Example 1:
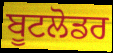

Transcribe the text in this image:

ਬੂਟਲੋਡਰ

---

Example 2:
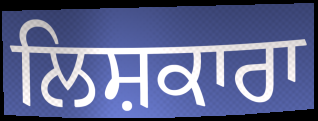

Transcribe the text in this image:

ਲਿਸ਼ਕਾਰਾ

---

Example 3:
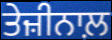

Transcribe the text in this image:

ਤੇਜ਼ੀਨਾਲ਼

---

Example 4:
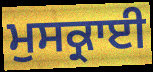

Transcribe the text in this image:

ਮੁਸਕ੍ਰਾਈ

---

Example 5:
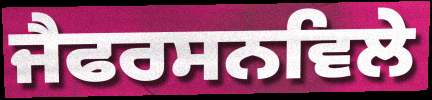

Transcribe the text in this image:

ਜੈਫਰਸਨਵਿਲੇ